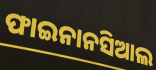
ଫାଇନାନସିଆଲ